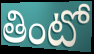
తింటో